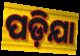
ପଡ଼ିଯା